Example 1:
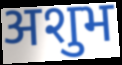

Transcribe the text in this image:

अशुभ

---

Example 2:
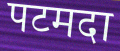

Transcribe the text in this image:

पटमदा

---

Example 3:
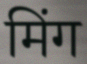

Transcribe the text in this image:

मिंग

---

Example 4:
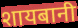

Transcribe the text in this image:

शायबानी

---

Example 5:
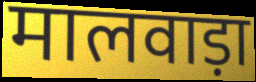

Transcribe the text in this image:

मालवाड़ा